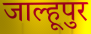
जाल्हूपुर